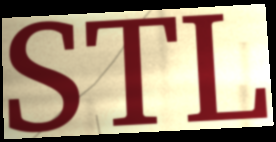
STL